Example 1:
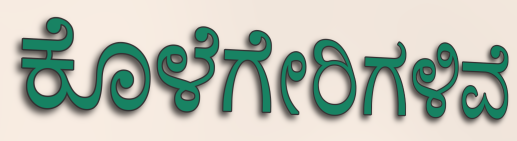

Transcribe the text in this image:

ಕೊಳೆಗೇರಿಗಳಿವೆ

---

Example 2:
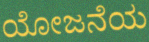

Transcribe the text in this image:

ಯೋಜನೆಯ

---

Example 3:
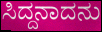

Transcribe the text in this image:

ಸಿದ್ದನಾದನು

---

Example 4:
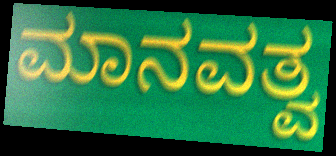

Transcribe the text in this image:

ಮಾನವತ್ವ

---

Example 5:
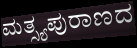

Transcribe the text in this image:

ಮತ್ಸ್ಯಪುರಾಣದ